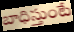
బాధిస్తుంటే